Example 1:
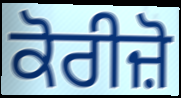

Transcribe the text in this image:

ਕੋਰੀਜ਼ੋ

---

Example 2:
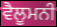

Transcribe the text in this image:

ਵੈਲੂਮਨੀ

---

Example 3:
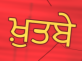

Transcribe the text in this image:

ਖ਼ੁਤਬੇ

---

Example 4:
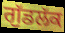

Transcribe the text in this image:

ਗੁੱਡਲੱਕ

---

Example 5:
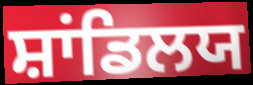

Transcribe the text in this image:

ਸ਼ਾਂਡਿਲਯ